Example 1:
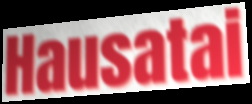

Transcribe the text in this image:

Hausatai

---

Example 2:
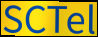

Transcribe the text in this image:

SCTel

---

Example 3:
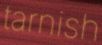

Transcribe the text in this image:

tarnish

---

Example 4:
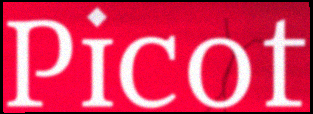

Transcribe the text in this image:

Picot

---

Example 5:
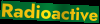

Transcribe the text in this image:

Radioactive